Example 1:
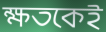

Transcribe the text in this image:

ক্ষতকেই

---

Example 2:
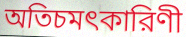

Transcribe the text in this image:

অতিচমৎকারিণী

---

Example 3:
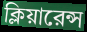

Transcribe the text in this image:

ক্লিয়ারেন্স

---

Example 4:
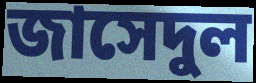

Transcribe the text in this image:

জাসেদুল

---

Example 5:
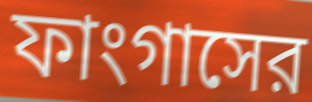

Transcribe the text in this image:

ফাংগাসের